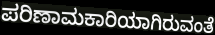
ಪರಿಣಾಮಕಾರಿಯಾಗಿರುವಂತೆ